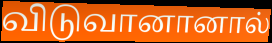
விடுவானானால்